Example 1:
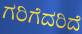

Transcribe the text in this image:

ಗರಿಗೆದರಿದೆ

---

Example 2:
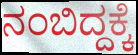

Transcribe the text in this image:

ನಂಬಿದ್ದಕ್ಕೆ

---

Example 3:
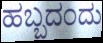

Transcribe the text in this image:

ಹಬ್ಬದಂದು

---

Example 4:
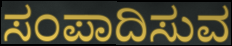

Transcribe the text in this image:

ಸಂಪಾದಿಸುವ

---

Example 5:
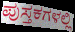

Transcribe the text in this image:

ಪುಸ್ತಕಗಳಲ್ಲಿ